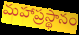
మహాప్రస్థానం